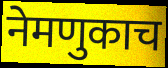
नेमणुकाच